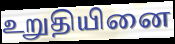
உறுதியினை